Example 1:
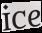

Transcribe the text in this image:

ice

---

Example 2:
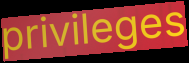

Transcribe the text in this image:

privileges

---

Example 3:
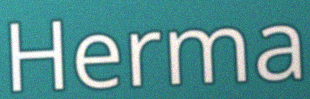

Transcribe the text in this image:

Herma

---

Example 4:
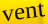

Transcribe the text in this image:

vent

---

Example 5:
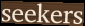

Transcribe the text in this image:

seekers